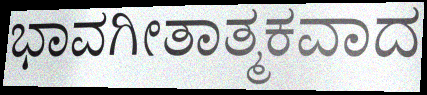
ಭಾವಗೀತಾತ್ಮಕವಾದ